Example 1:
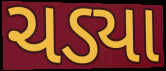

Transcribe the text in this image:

ચડ્યા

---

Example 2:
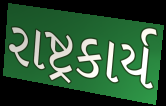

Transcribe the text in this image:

રાષ્ટ્રકાર્ય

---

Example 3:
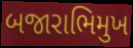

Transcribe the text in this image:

બજારાભિમુખ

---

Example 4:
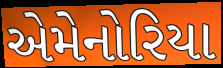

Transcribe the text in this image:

એમેનોરિયા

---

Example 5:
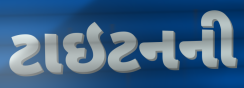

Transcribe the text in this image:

ટાઇટનની